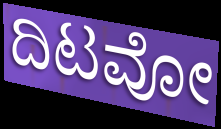
ದಿಟವೋ